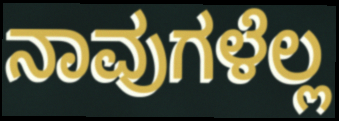
ನಾವುಗಳೆಲ್ಲ